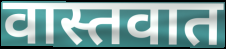
वास्तवात